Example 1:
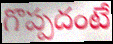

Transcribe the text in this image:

గొప్పదంటే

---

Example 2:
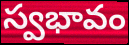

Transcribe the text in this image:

స్వభావం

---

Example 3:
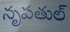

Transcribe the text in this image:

నృపతుల్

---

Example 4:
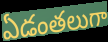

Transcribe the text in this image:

ఏడంతలుగా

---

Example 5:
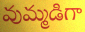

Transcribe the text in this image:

వుమ్మడిగా